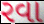
રવા